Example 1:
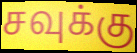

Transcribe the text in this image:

சவுக்கு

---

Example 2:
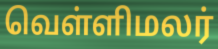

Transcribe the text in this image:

வெள்ளிமலர்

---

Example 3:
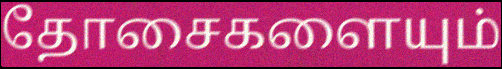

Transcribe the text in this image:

தோசைகளையும்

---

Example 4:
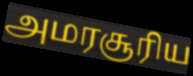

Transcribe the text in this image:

அமரசூரிய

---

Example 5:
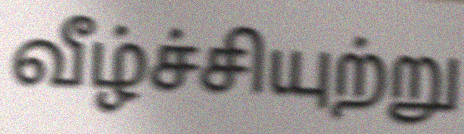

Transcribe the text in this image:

வீழ்ச்சியுற்று